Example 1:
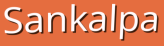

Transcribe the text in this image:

Sankalpa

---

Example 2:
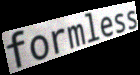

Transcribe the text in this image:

formless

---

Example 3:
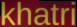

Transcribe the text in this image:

khatri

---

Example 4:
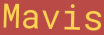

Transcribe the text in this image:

Mavis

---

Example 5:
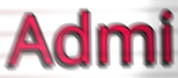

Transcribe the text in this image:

Admi